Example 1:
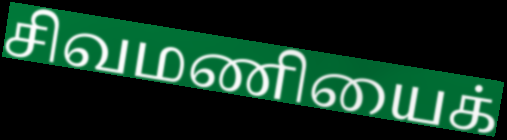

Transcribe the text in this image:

சிவமணியைக்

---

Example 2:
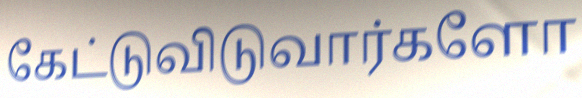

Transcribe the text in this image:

கேட்டுவிடுவார்களோ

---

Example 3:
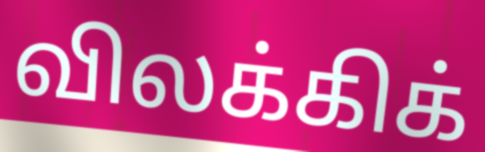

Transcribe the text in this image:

விலக்கிக்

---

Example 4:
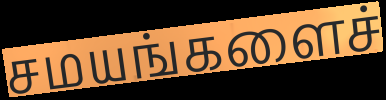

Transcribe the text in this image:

சமயங்களைச்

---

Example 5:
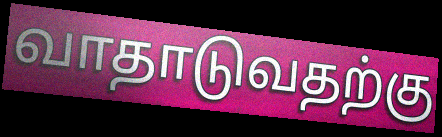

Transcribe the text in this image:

வாதாடுவதற்கு